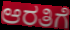
ಆರತಿಗೆ